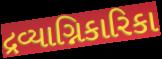
દ્રવ્યાગ્નિકારિકા